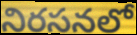
నిరసనలో